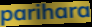
parihara